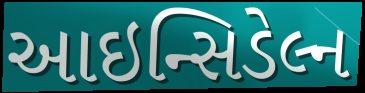
આઇન્સિડેલ્ન